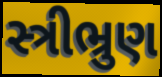
સ્ત્રીભ્રુણ